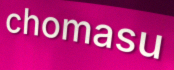
chomasu